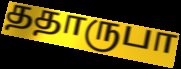
ததாருபா